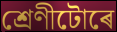
শ্ৰেণীটোৰে